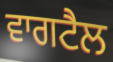
ਵਾਗਟੈਲ